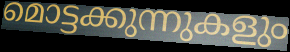
മൊട്ടക്കുന്നുകളും